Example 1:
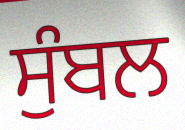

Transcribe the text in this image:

ਸੁੰਬਲ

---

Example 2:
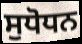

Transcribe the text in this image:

ਸੁਧੋਧਨ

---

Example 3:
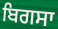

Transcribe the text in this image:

ਬਿਗਸਾ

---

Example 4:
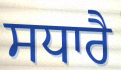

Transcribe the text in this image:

ਸਧਾਰੈ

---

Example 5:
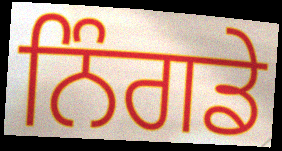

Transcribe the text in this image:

ਨਿੰਗਡੇ